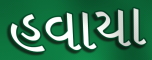
હવાયા